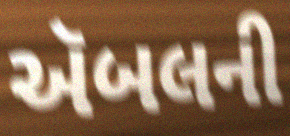
ઍબલની